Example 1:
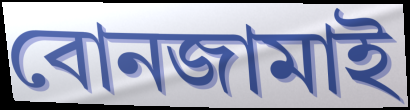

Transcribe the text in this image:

বোনজামাই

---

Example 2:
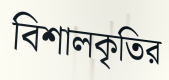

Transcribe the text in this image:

বিশালকৃতির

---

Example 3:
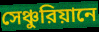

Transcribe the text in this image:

সেঞ্চুরিয়ানে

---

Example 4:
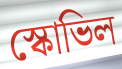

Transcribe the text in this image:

স্কোভিল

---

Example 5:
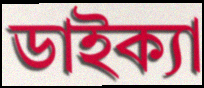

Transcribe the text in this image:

ডাইক্যা